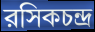
রসিকচন্দ্র